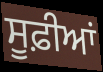
ਸੂਫ਼ੀਆਂ